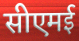
सीएमई